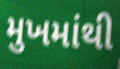
મુખમાંથી